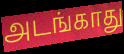
அடங்காது